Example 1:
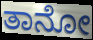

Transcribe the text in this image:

ತಾನೋ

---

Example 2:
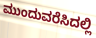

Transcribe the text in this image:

ಮುಂದುವರೆಸಿದಲ್ಲಿ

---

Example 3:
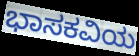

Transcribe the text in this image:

ಭಾಸಕವಿಯ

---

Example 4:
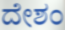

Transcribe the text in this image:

ದೇಶಂ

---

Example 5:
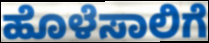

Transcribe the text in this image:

ಹೊಳೆಸಾಲಿಗೆ